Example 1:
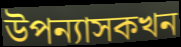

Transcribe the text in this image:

উপন্যাসকখন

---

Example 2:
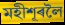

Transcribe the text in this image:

মহীশূৰলৈ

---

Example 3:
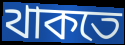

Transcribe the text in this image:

থাকতে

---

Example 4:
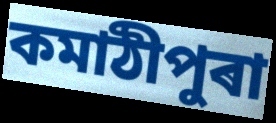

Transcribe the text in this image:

কমাঠীপুৰা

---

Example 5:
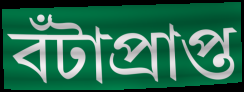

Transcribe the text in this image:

বঁটাপ্ৰাপ্ত